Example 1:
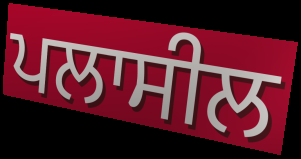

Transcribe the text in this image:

ਪਲਾਸੀਲ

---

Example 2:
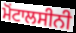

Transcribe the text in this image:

ਮੋਂਟਾਲਸੀਨੀ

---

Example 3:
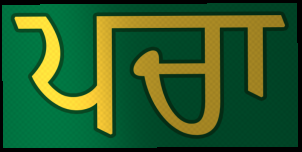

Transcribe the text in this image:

ਪਚਾ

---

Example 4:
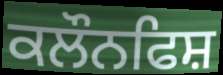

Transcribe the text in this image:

ਕਲੌਨਫਿਸ਼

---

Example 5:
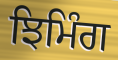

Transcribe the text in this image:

ਝਿਮਿੰਗ